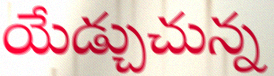
యేడ్చుచున్న